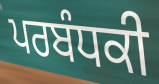
ਪਰਬੰਧਕੀ